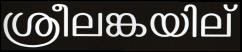
ശ്രീലങ്കയില്